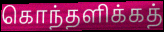
கொந்தளிக்கத்